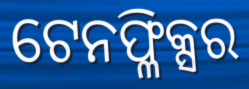
ଟେନଫ୍ଳିକ୍ସର